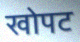
खोपट